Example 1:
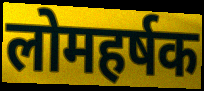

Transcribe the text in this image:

लोमहर्षक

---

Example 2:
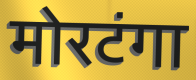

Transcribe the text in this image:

मोरटंगा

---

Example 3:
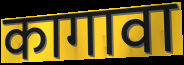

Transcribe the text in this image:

कागावा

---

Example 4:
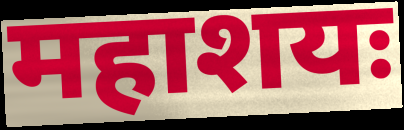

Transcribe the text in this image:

महाशयः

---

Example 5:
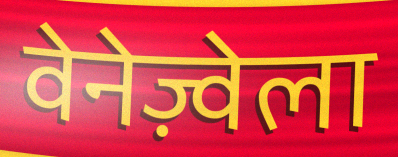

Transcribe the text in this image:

वेनेज़्वेला